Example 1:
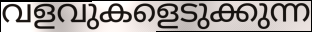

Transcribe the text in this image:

വളവുകളെടുക്കുന്ന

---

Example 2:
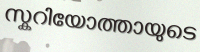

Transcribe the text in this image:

സ്കറിയോത്തായുടെ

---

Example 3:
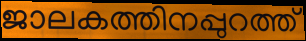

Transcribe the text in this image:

ജാലകത്തിനപ്പുറത്ത്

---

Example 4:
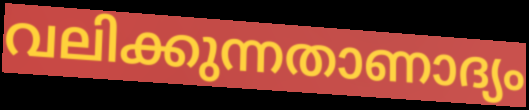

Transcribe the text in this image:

വലിക്കുന്നതാണാദ്യം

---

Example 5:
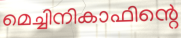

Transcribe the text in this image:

മെച്ചിനികാഫിന്റെ